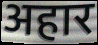
अहार